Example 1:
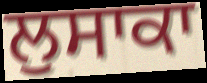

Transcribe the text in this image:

ਲੁਸਾਕਾ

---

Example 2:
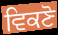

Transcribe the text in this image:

ਵਿਕਣੋ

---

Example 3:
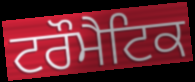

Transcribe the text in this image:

ਟਰੌਮੈਟਿਕ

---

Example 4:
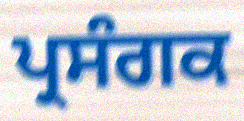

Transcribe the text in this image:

ਪ੍ਰਸੰਗਕ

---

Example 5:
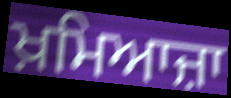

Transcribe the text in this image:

ਖ਼ਮਿਆਜ਼ਾ